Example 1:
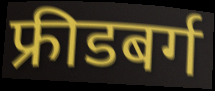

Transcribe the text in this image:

फ्रीडबर्ग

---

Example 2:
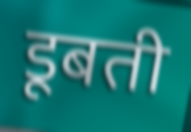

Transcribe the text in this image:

डूबती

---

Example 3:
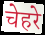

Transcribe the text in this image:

चेहरे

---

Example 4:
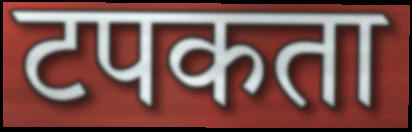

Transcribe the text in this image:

टपकता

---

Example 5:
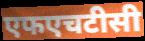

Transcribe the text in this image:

एफएचटीसी